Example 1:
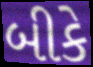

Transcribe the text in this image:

બીકે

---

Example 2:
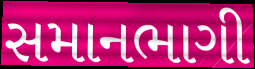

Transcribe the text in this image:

સમાનભાગી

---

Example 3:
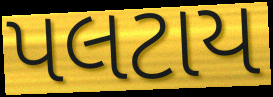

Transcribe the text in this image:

પલટાય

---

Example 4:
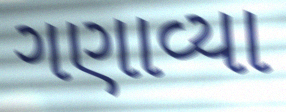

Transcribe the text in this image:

ગણાવ્યા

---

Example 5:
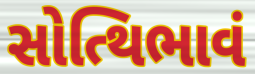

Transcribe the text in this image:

સોત્થિભાવં